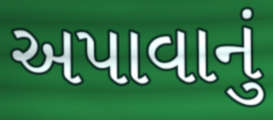
અપાવાનું